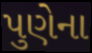
પુણેના